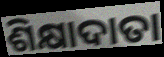
ଶିକ୍ଷାଦାତା